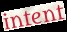
intent